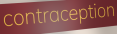
contraception